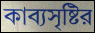
কাব্যসৃষ্টির